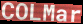
COLMar